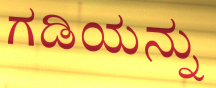
ಗಡಿಯನ್ನು